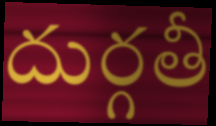
దుర్గతీ